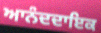
ਆਨੰਦਦਾਇਕ